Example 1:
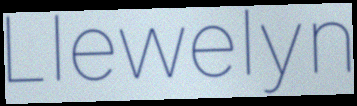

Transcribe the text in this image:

Llewelyn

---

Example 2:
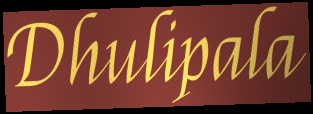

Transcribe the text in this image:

Dhulipala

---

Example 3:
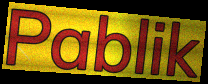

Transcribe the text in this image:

Pablik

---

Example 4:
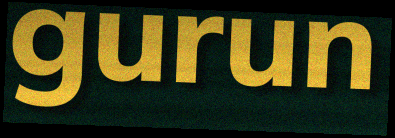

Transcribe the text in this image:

gurun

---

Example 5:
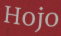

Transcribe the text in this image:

Hojo